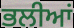
ਭਲੀਆਂ